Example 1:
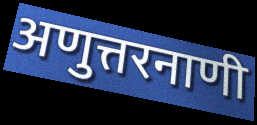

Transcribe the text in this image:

अणुत्तरनाणी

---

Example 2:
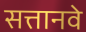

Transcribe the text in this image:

सत्तानवे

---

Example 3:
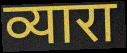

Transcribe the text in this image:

व्यारा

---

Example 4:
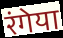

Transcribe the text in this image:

रंगेया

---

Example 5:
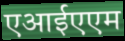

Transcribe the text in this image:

एआईएएम